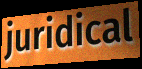
juridical